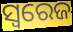
ସ୍ବରେଜ